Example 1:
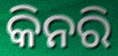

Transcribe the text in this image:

କିନରି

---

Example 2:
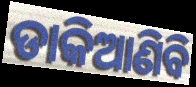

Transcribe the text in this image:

ଡାକିଆଣିବି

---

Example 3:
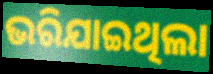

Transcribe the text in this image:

ଭରିଯାଇଥିଲା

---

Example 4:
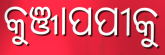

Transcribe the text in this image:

କୁଞ୍ଜାପପୀକୁ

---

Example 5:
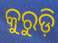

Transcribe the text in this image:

କୁରୁଡ଼ି